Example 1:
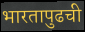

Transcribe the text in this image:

भारतापुढची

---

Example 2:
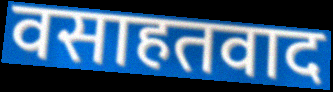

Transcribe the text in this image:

वसाहतवाद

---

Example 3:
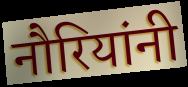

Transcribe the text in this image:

नौरियांनी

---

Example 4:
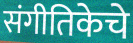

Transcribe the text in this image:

संगीतिकेचे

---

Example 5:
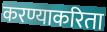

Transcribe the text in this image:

करण्याकरिता